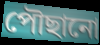
পৌছানো